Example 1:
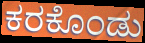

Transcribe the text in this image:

ಕರಕೊಂಡು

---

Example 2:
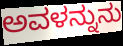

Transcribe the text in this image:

ಅವಳನ್ನುನು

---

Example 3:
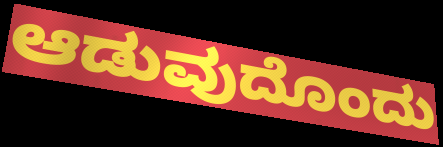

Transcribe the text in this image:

ಆಡುವುದೊಂದು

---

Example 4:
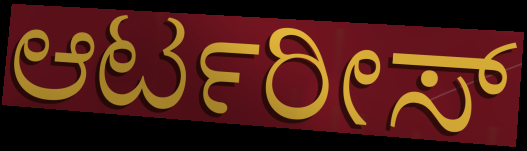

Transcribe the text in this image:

ಆರ್ಟರೀಸ್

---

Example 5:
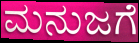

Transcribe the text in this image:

ಮನುಜಗೆ